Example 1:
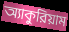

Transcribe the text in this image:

অ্যাকুরিয়াম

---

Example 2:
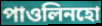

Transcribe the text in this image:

পাওলিনহো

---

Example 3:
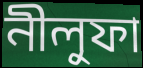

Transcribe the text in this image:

নীলুফা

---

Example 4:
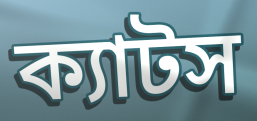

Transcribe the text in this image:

ক্যাটস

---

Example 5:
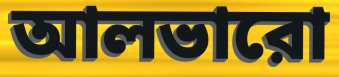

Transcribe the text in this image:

আলভারো